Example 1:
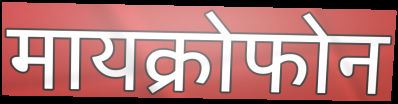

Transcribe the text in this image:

मायक्रोफोन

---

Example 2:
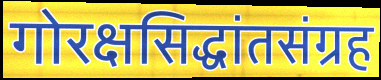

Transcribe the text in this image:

गोरक्षसिद्धांतसंग्रह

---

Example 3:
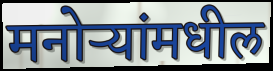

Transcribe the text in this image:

मनोऱ्यांमधील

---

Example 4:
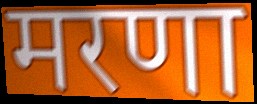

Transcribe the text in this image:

मरणा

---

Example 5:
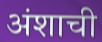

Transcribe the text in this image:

अंशाची